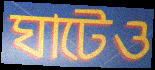
ঘাটেও